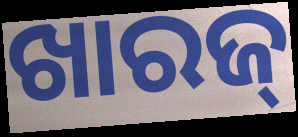
ଖାରଜ୍